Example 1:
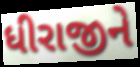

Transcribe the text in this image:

ધીરાજીને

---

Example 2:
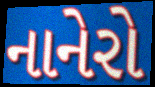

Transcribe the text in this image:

નાનેરો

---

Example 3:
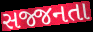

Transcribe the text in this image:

સજ્જનતા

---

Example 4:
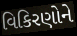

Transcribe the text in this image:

વિકિરણોને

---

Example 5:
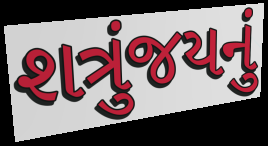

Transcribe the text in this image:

શત્રુંજયનું